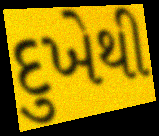
દુખેથી